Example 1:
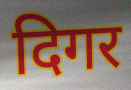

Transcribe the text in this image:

दिगर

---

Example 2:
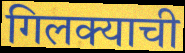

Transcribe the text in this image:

गिलक्याची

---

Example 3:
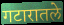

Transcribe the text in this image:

गटारातले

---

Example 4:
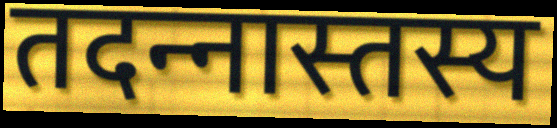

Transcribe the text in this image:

तदन्नास्तस्य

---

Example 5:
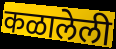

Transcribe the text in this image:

कळालेली